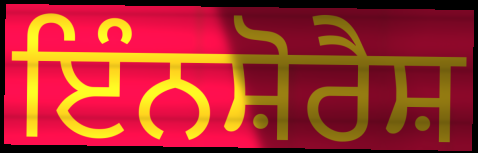
ਇੰਨਸ਼ੋਰੈਸ਼